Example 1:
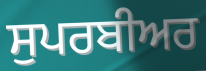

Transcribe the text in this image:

ਸੁਪਰਬੀਅਰ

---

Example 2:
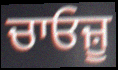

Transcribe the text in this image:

ਚਾਓਜ਼ੂ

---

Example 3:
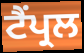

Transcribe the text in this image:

ਟੈਂਪ੍ਰਲ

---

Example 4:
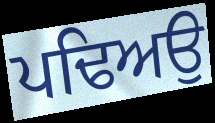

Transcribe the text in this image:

ਪਢਿਅਉ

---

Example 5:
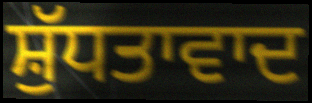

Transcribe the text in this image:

ਸ਼ੁੱਧਤਾਵਾਦ